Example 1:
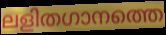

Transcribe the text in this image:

ലളിതഗാനത്തെ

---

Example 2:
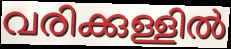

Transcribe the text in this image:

വരിക്കുള്ളിൽ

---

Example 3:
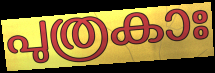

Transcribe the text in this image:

പുത്രകാഃ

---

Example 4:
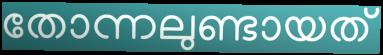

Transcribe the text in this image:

തോന്നലുണ്ടായത്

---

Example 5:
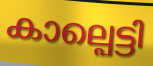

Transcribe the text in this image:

കാല്പെട്ടി